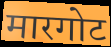
मारगोट